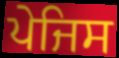
ਪੇਜਿਸ